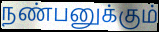
நண்பனுக்கும்